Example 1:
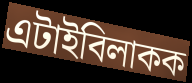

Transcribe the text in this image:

এটাইবিলাকক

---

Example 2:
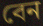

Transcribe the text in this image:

বেন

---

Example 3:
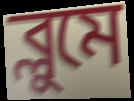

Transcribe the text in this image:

ব্লুমে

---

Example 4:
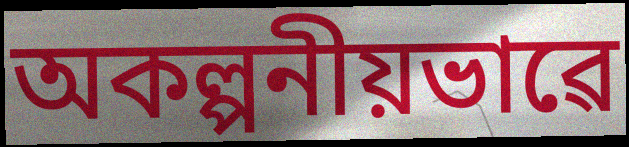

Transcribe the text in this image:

অকল্পনীয়ভাৱে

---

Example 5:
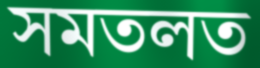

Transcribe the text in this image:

সমতলত